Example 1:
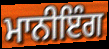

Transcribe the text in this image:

ਮਾਨੀਇੰਗ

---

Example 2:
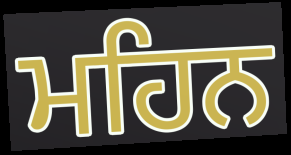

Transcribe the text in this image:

ਮਹਿਨ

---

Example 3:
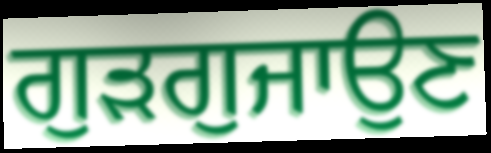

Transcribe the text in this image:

ਗੁੜਗੁਜਾਉਣ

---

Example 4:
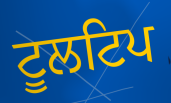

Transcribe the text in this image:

ਟੂਲਟਿਪ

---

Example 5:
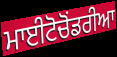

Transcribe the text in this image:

ਮਾਈਟੋਚੋਂਡਰੀਆ